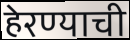
हेरण्याची